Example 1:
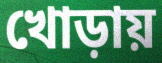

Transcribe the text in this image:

খোড়ায়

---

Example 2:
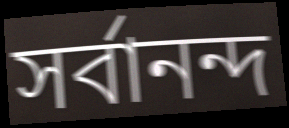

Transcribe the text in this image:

সর্বানন্দ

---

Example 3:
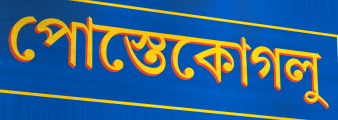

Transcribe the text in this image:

পোস্তেকোগলু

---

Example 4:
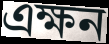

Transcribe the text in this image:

এক্ষন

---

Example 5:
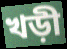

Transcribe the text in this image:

খড়ী